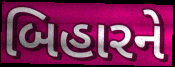
બિહારને